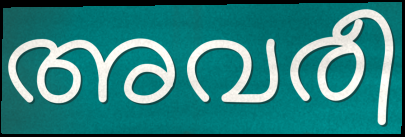
അവരീ